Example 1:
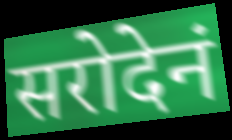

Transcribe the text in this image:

सरोदेनं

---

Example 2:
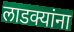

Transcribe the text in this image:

लाडक्यांना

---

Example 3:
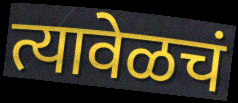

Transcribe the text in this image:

त्यावेळचं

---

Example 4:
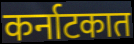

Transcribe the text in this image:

कर्नाटकात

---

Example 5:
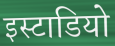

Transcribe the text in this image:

इस्टाडियो